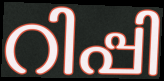
റിപ്പി